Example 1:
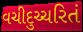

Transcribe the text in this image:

વચીદુચ્ચરિતં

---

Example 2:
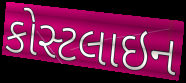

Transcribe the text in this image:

કોસ્ટલાઇન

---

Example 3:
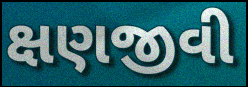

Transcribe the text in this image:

ક્ષણજીવી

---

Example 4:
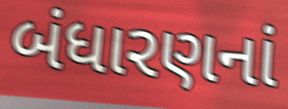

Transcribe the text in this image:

બંધારણનાં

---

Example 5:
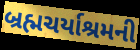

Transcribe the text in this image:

બ્રહ્મચર્યાશ્રમની